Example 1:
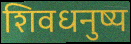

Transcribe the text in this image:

शिवधनुष्य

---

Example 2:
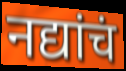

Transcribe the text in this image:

नद्यांचं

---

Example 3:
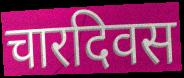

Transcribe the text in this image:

चारदिवस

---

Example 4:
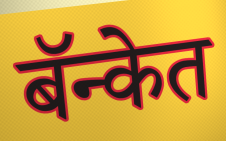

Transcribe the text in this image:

बॅन्केत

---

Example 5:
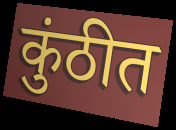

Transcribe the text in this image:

कुंठीत